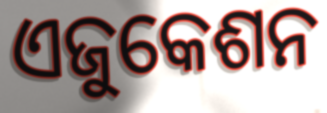
ଏଜୁକେଶନ